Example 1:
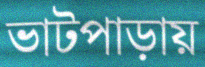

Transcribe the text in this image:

ভাটপাড়ায়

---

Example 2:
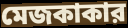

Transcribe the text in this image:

মেজকাকার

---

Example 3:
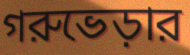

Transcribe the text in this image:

গরুভেড়ার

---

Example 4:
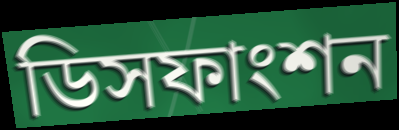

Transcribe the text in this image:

ডিসফাংশন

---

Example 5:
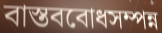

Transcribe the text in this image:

বাস্তববোধসম্পন্ন